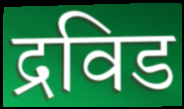
द्रविड